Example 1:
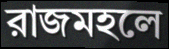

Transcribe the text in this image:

রাজমহলে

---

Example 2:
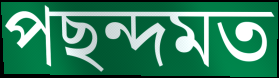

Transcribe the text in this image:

পছন্দমত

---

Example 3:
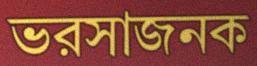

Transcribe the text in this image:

ভরসাজনক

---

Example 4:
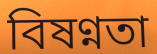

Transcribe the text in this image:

বিষণ্নতা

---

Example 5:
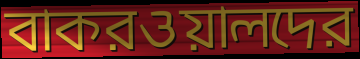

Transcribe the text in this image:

বাকরওয়ালদের